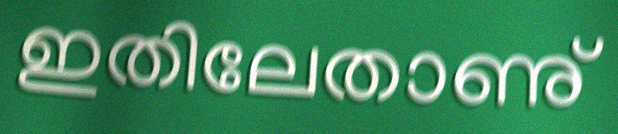
ഇതിലേതാണു്